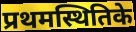
प्रथमस्थितिके